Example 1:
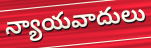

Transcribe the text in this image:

న్యాయవాదులు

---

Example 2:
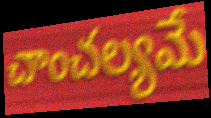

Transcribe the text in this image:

చాంచల్యమే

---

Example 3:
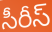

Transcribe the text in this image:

సీరీస్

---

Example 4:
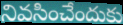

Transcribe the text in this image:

నివసించేందుకు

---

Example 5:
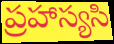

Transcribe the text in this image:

ప్రహాస్యసి